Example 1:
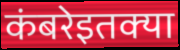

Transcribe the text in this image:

कंबरेइतक्या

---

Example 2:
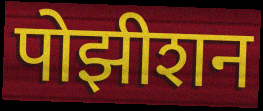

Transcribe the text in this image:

पोझीशन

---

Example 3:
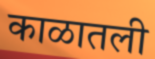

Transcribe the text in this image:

काळातली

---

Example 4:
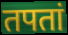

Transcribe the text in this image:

तपतां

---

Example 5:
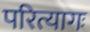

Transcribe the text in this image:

परित्यागः